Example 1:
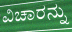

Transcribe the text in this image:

ವಿಚಾರನ್ನು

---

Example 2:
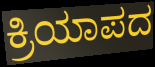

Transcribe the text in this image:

ಕ್ರಿಯಾಪದ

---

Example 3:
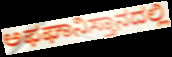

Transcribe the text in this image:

ಅಫಘಾನಿಸ್ತಾನದಲ್ಲಿ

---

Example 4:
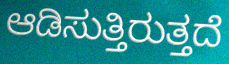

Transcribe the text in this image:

ಆಡಿಸುತ್ತಿರುತ್ತದೆ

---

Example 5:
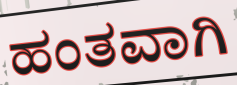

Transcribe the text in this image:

ಹಂತವಾಗಿ